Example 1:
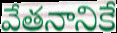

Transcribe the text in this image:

వేతనానికే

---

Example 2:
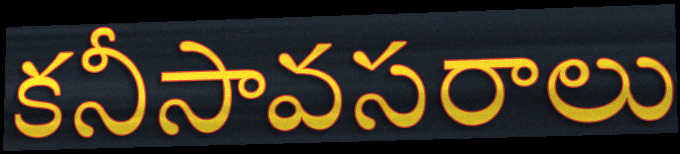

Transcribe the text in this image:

కనీసావసరాలు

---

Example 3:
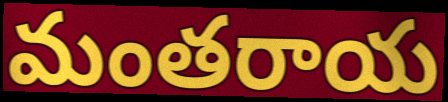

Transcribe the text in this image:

మంతరాయ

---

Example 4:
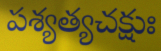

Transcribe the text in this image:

పశ్యత్యచక్షుః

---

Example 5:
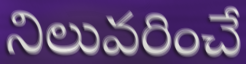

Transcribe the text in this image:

నిలువరించే